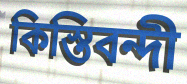
কিস্তিবন্দী